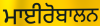
ਮਾਈਰੋਬਾਲਨ